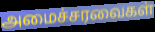
அமைச்சரவைகள்